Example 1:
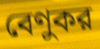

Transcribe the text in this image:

বেণুকর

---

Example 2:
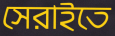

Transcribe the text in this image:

সেরাইতে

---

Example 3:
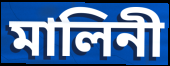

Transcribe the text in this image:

মালিনী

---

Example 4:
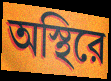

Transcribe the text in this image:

অস্থিরে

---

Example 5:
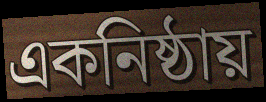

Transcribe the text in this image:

একনিষ্ঠায়